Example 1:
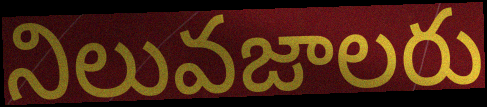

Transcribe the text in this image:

నిలువజాలరు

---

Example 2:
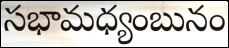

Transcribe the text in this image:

సభామధ్యంబునం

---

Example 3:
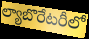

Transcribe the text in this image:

ల్యాబొరేటరీలో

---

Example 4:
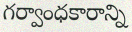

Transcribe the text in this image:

గర్వాంధకారాన్ని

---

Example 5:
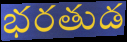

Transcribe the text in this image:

భరతుడ